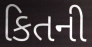
કિતની